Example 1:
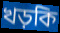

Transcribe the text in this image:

খড়কি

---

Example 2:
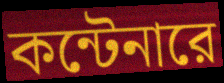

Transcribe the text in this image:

কন্টেনারে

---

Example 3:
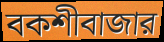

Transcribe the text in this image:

বকশীবাজার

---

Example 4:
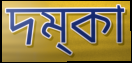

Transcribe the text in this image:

দম্‌কা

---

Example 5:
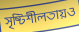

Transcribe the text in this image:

সৃষ্টিশীলতায়ও